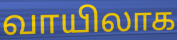
வாயிலாக